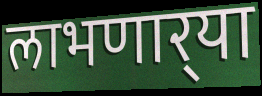
लाभणार्‍या